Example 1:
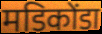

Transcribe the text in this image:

मडिकोंडा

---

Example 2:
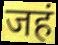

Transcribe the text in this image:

जहं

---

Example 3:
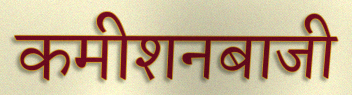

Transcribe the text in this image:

कमीशनबाजी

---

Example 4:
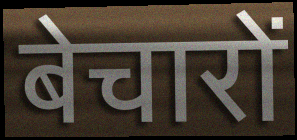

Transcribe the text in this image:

बेचारों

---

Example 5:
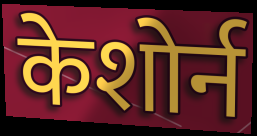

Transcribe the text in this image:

केशोर्न